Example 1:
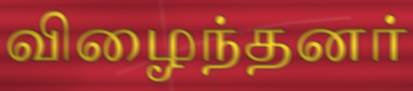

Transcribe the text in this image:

விழைந்தனர்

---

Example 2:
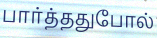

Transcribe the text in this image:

பார்த்ததுபோல்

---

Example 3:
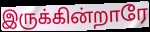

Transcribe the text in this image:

இருக்கின்றாரே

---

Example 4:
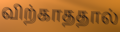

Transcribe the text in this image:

விற்காததால்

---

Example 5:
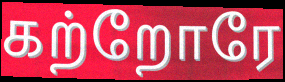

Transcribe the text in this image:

கற்றோரே